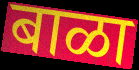
बाळा